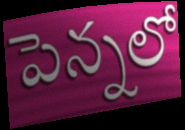
పెన్నలో